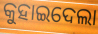
କୁହାଇଦେଲା